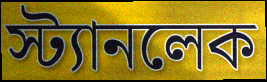
স্ট্যানলেক